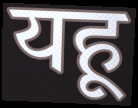
यहू